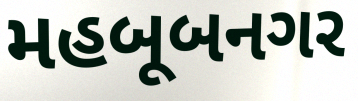
મહબૂબનગર